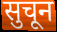
सुचून